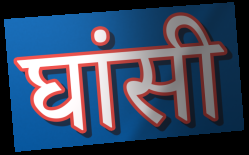
घांसी